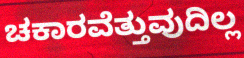
ಚಕಾರವೆತ್ತುವುದಿಲ್ಲ